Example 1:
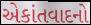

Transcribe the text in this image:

એકાંતવાદનો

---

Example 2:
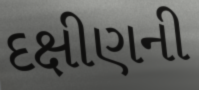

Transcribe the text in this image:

દક્ષીણની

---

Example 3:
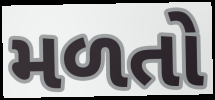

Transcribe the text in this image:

મળતો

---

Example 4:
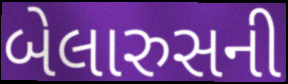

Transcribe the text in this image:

બેલારુસની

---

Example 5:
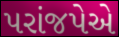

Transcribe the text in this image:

પરાંજપેએ